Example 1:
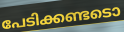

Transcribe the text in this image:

പേടിക്കണ്ടടൊ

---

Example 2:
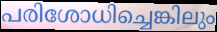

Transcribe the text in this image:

പരിശോധിച്ചെങ്കിലും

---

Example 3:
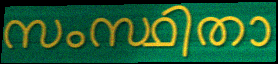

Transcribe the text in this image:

സംസ്ഥിതാ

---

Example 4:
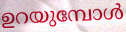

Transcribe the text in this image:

ഉറയുമ്പോൾ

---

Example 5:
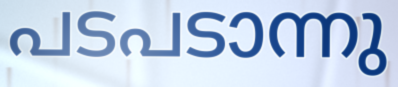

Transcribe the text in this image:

പടപടാന്നു